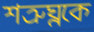
শত্রুঘ্নকে